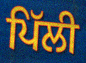
ਪਿੱਲੀ